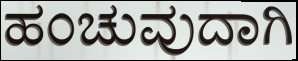
ಹಂಚುವುದಾಗಿ